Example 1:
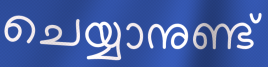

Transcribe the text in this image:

ചെയ്യാനുണ്ട്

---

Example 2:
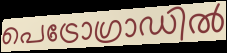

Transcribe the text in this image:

പെട്രോഗ്രാഡിൽ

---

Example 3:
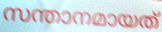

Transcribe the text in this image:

സന്താനമായത്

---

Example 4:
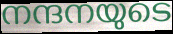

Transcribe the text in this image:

നന്ദനയുടെ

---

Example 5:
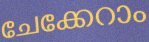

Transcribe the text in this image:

ചേക്കേറാം